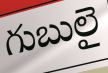
గుబులై